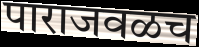
पाराजवळच